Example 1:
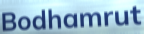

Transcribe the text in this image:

Bodhamrut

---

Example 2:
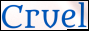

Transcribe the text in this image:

Cruel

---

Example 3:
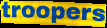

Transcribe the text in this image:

troopers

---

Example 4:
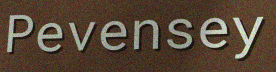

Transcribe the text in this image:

Pevensey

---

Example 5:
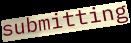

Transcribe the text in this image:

submitting